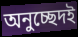
অনুচ্ছেদই